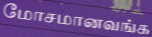
மோசமானவங்க